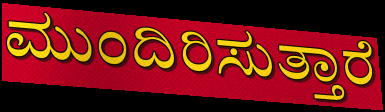
ಮುಂದಿರಿಸುತ್ತಾರೆ